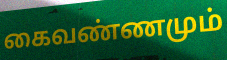
கைவண்ணமும்